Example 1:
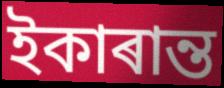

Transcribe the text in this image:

ইকাৰান্ত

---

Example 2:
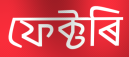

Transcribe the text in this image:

ফেক্টৰি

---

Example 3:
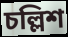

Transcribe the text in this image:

চল্লিশ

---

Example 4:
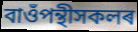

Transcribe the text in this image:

বাওঁপন্থীসকলৰ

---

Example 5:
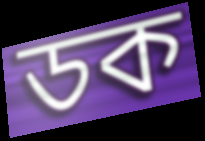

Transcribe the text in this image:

ডক